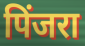
पिंजरा